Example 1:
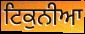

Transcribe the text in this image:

ਟਿਕੁਨੀਆ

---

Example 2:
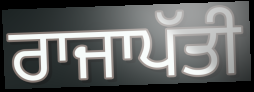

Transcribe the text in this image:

ਰਾਜਾਪੱਤੀ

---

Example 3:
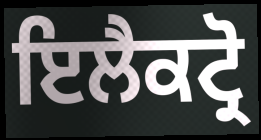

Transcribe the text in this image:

ਇਲੈਕਟ੍ਰੋ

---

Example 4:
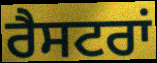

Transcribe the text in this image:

ਰੈਸਟਰਾਂ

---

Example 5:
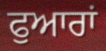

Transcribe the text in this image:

ਫੁਆਰਾਂ